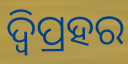
ଦ୍ବିପ୍ରହର